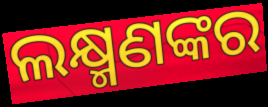
ଲକ୍ଷ୍ମଣଙ୍କର